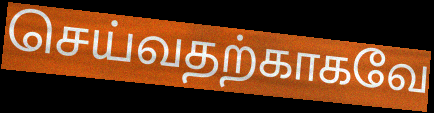
செய்வதற்காகவே